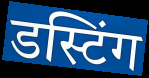
डस्टिंग